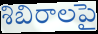
శిబిరాలపై